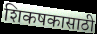
शिकषकासाठी